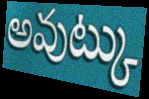
అవుట్కు